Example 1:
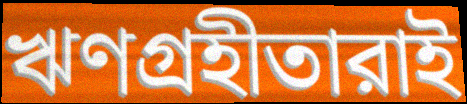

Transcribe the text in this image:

ঋণগ্রহীতারাই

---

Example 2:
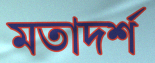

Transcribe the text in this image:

মতাদর্শ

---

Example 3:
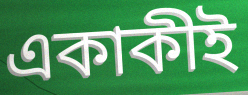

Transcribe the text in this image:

একাকীই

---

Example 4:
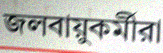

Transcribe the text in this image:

জলবায়ুকর্মীরা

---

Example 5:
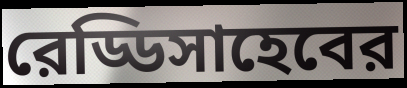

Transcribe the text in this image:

রেড্ডিসাহেবের